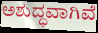
ಅಶುದ್ಧವಾಗಿವೆ